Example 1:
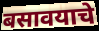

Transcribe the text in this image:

बसावयाचे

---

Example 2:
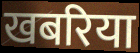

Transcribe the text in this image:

खबरिया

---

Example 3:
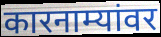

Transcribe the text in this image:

कारनाम्यांवर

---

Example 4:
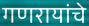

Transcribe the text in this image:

गणरायांचे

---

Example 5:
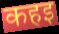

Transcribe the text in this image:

कहइ